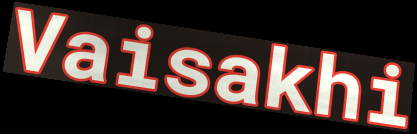
Vaisakhi